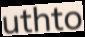
uthto